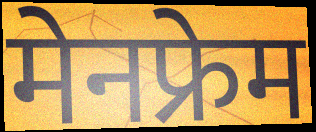
मेनफ्रेम